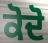
ਕੋਦੋ